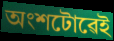
অংশটোৱেই